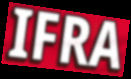
IFRA